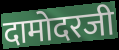
दामोदरजी